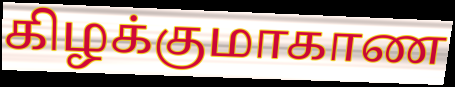
கிழக்குமாகாண